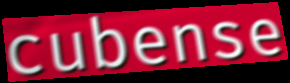
cubense